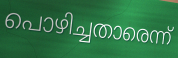
പൊഴിച്ചതാരെന്ന്